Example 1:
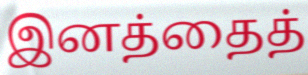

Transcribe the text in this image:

இனத்தைத்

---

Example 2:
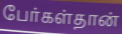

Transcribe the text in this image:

பேர்கள்தான்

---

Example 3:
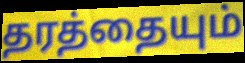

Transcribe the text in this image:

தரத்தையும்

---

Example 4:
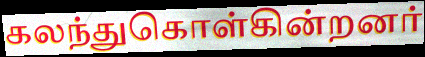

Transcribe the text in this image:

கலந்துகொள்கின்றனர்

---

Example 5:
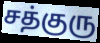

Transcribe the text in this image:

சத்குரு